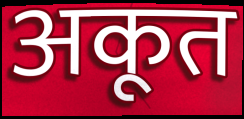
अकूत